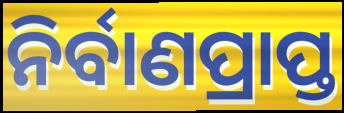
ନିର୍ବାଣପ୍ରାପ୍ତ